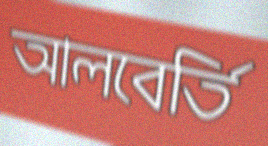
আলবের্তি